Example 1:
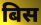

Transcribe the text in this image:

बिस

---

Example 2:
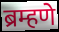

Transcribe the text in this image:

ब्रम्हणे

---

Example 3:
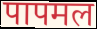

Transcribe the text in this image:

पापमल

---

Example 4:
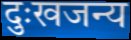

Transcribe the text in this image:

दुःखजन्य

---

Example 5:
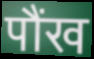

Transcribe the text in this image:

पौंख